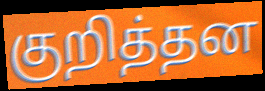
குறித்தன